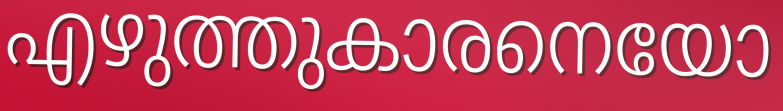
എഴുത്തുകാരനെയോ